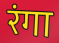
रंगा